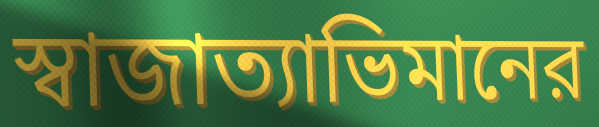
স্বাজাত্যাভিমানের